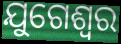
ଯୁଗେଶ୍ଵର